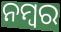
ନମ୍ବର